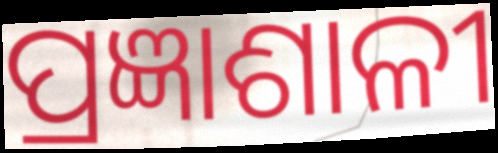
ପ୍ରଜ୍ଞାଶାଳୀ